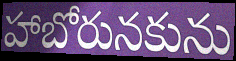
హాబోరునకును